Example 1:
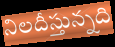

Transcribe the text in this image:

నిలదీస్తున్నది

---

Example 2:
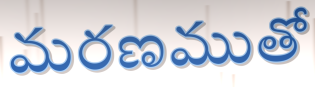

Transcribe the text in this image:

మరణముతో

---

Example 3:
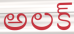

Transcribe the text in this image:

అలక్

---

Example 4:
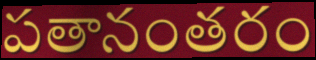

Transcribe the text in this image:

పతానంతరం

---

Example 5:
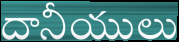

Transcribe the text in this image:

దానీయులు